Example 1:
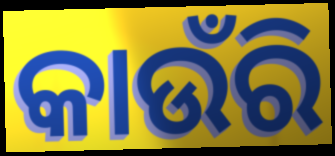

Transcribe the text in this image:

କାଉଁରି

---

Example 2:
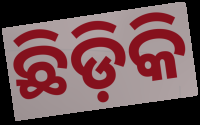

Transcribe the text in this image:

ଛିଡ଼ିକି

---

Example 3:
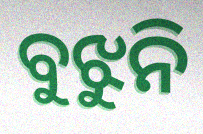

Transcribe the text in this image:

ବୁଝୁନି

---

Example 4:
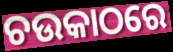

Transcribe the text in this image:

ଚଉକାଠରେ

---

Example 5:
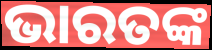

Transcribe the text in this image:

ଭାରତଙ୍କ